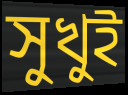
সুখুই